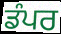
ਡੰਪਰ